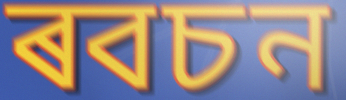
ৰবচন